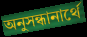
অনুসন্ধানার্থে